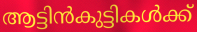
ആട്ടിൻകുട്ടികൾക്ക്